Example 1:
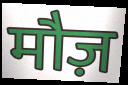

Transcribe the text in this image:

मौज़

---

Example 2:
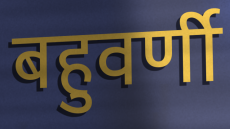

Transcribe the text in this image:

बहुवर्णी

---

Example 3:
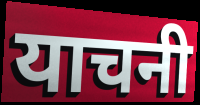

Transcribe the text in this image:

याचनी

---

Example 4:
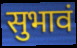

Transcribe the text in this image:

सुभावं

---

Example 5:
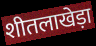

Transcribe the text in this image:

शीतलाखेड़ा